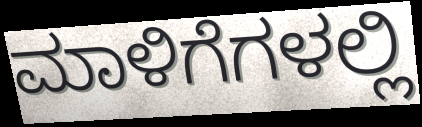
ಮಾಳಿಗೆಗಳಲ್ಲಿ